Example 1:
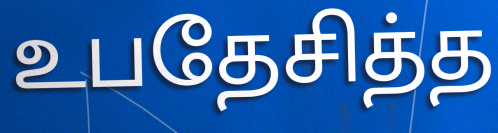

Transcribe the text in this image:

உபதேசித்த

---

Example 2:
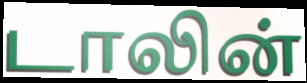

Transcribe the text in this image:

டாலின்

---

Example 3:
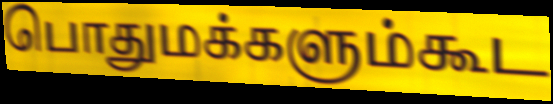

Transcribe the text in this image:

பொதுமக்களும்கூட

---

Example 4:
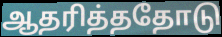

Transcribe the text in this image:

ஆதரித்ததோடு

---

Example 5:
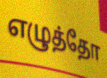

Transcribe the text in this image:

எழுத்தோ